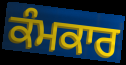
ਕੰਮਕਾਰ